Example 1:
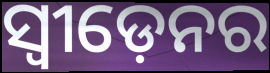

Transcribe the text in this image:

ସ୍ଵୀଡ଼େନର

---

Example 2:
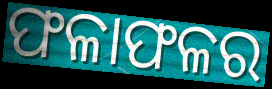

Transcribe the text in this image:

ଫଳାଫଳର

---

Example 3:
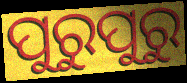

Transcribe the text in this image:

ପୁରୁପୁରୁ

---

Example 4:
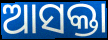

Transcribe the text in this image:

ଆସକ୍ତା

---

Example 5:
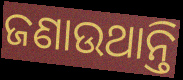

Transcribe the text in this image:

ଜଣାଉଥାନ୍ତି